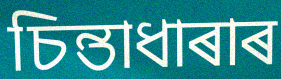
চিন্তাধাৰাৰ